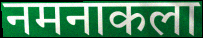
नमनाकला